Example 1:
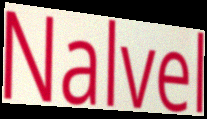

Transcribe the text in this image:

Nalvel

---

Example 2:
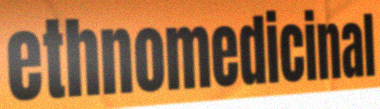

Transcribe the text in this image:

ethnomedicinal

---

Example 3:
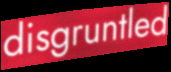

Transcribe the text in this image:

disgruntled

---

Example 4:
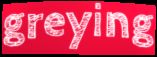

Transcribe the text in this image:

greying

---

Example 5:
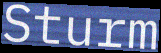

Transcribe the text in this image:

Sturm